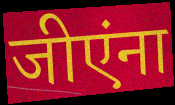
जीएंना